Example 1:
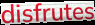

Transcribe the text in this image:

disfrutes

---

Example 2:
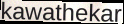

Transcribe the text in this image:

kawathekar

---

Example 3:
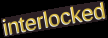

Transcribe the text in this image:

interlocked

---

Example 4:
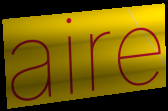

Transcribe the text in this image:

aire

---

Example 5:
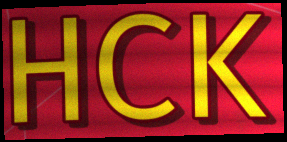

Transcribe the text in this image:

HCK